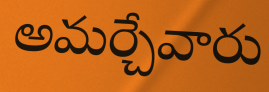
అమర్చేవారు